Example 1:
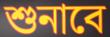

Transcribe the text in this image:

শুনাবে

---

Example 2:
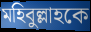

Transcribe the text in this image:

মহিবুল্লাহকে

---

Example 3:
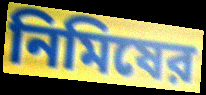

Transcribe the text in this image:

নিমিষের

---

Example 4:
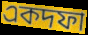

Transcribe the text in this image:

একদফা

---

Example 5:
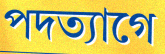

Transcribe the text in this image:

পদত্যাগে